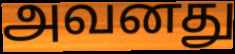
அவனது